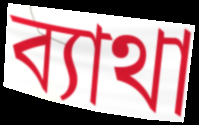
ব্যাথা